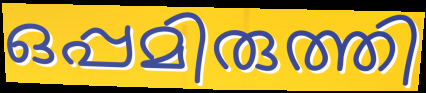
ഒപ്പമിരുത്തി